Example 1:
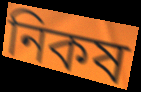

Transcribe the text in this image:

নিকষ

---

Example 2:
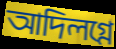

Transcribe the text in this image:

আদিলগ্নে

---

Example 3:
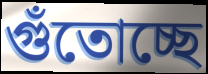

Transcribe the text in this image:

গুঁতোচ্ছে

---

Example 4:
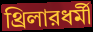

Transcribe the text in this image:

থ্রিলারধর্মী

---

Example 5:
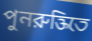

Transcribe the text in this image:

পুনরুক্তিতে